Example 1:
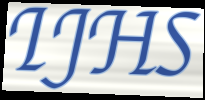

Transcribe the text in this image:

IJHS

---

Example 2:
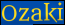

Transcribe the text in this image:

Ozaki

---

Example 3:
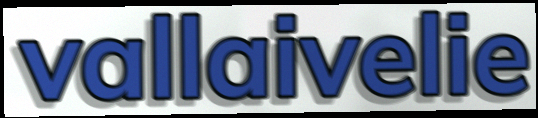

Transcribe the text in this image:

vallaivelie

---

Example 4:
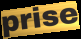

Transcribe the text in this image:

prise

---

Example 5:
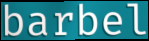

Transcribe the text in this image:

barbel